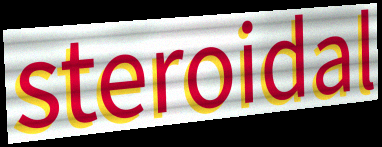
steroidal